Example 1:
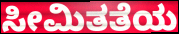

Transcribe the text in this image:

ಸೀಮಿತತೆಯ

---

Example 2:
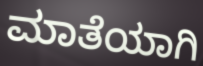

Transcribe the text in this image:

ಮಾತೆಯಾಗಿ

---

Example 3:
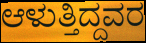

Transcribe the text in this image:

ಆಳುತ್ತಿದ್ದವರ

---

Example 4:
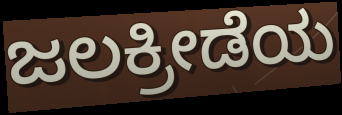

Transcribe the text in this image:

ಜಲಕ್ರೀಡೆಯ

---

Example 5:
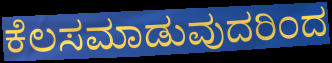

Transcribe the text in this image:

ಕೆಲಸಮಾಡುವುದರಿಂದ